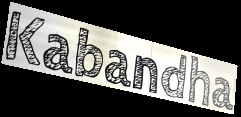
Kabandha